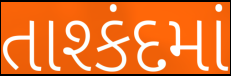
તાશ્કંદમાં